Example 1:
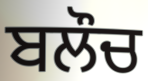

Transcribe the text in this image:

ਬਲੌਚ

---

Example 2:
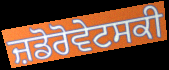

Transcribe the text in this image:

ਜ਼ਡੋਰੋਵੇਟਸਕੀ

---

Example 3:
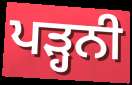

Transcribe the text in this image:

ਪੜ੍ਹਨੀ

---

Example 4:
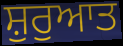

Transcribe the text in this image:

ਸ਼ੁਰੁਆਤ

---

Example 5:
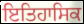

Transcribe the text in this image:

ਇਤਿਹਾਸਿਕ